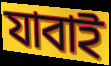
যাবাই